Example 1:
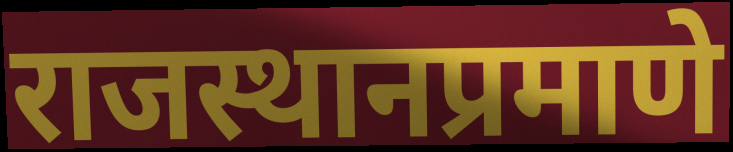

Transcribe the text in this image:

राजस्थानप्रमाणे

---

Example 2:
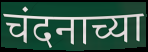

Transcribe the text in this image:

चंदनाच्या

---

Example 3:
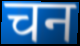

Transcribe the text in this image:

चन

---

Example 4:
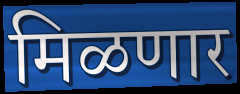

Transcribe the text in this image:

मिळणार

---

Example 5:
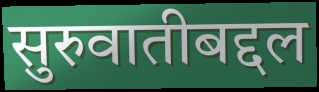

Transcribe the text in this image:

सुरुवातीबद्दल